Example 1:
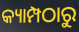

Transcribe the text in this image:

କ୍ୟାମ୍ପଠାରୁ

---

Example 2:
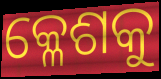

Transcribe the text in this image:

କ୍ଳେଶକୁ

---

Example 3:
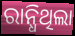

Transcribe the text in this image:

ରାନ୍ଧିଥିଲା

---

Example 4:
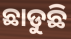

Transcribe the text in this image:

ଛାଡୁଛି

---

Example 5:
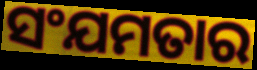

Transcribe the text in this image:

ସଂଯମତାର